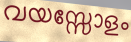
വയസ്സോളം